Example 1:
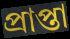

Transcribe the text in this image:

প্রাপ্তা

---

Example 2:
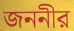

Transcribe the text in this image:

জননীর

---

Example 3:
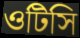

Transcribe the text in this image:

ওটিসি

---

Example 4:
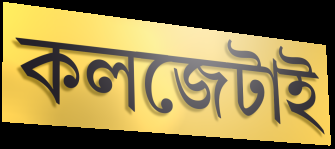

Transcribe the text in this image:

কলজেটাই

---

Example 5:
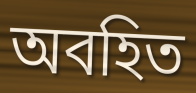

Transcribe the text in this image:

অবহিত